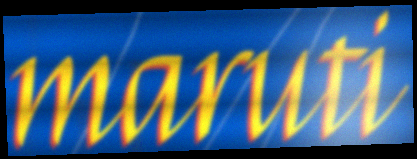
maruti